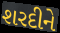
શરદીને